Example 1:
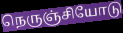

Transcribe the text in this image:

நெருஞ்சியோடு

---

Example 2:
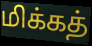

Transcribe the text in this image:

மிக்கத்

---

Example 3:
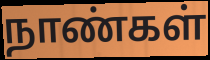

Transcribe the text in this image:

நாண்கள்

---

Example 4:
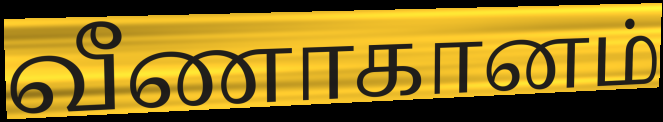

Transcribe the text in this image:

வீணாகானம்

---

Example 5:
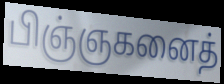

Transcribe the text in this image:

பிஞ்ஞகனைத்